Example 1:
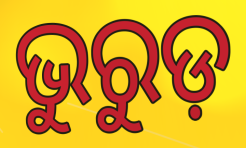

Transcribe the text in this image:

ଭୁରୁଡ଼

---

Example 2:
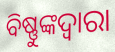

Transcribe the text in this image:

ବିଷ୍ଣୁଙ୍କଦ୍ୱାରା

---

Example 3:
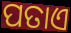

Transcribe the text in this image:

ପତାଏ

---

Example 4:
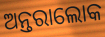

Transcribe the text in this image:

ଅନ୍ତରାଲୋକ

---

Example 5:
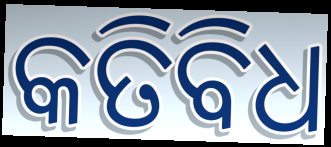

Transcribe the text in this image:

କତିବିଧ